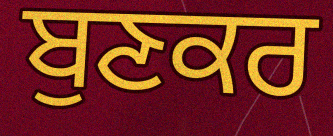
ਬੁਣਕਰ